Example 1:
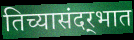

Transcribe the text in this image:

तिच्यासंदर्भात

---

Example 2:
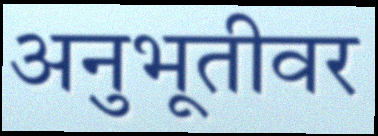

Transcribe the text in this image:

अनुभूतीवर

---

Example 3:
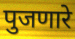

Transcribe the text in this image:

पुजणारे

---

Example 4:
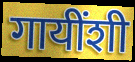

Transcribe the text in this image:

गायींशी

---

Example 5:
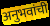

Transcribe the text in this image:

अनुभवांची